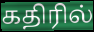
கதிரில்